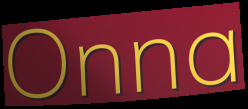
Onna